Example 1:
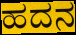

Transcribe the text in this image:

ಹದನ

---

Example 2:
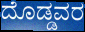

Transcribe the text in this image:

ದೊಡ್ಡವರ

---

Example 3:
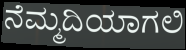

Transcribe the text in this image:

ನೆಮ್ಮದಿಯಾಗಲಿ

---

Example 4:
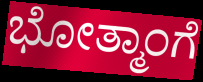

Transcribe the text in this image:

ಭೋತ್ಮಾಂಗೆ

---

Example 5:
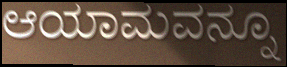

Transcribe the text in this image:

ಆಯಾಮವನ್ನೂ